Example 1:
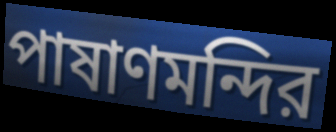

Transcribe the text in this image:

পাষাণমন্দির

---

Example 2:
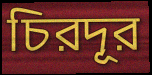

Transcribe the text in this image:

চিরদূর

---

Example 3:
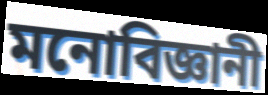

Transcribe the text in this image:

মনোবিজ্ঞানী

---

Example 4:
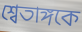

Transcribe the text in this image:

শ্বেতাঙ্গকে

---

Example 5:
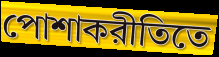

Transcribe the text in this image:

পোশাকরীতিতে